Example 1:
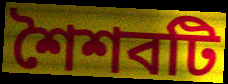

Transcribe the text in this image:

শৈশবটি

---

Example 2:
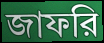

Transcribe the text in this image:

জাফরি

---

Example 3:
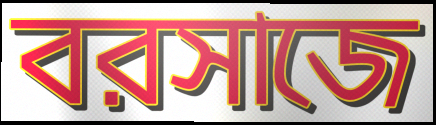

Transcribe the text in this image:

বরসাজে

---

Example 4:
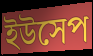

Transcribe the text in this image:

ইউসেপ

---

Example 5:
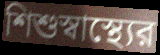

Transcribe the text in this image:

শিশুস্বাস্থ্যের